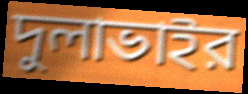
দুলাভাইর